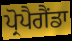
ਪ੍ਰੋਪੈਗੈਂਡਾ